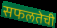
सफलतेची